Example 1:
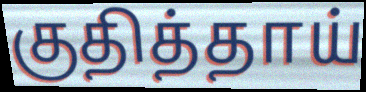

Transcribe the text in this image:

குதித்தாய்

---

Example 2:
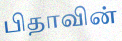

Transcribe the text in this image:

பிதாவின்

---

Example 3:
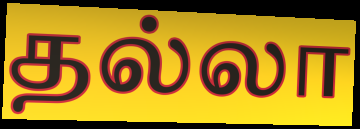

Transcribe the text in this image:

தல்லா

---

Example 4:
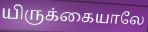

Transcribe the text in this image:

யிருக்கையாலே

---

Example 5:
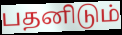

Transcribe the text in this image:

பதனிடும்